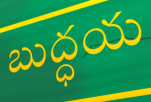
బుద్ధయ